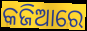
କଜିଆରେ